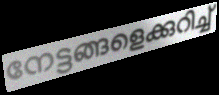
നേട്ടങ്ങളെക്കുറിച്ച്